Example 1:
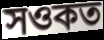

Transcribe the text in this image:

সওকত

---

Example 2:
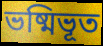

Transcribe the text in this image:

ভষ্মিভূত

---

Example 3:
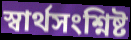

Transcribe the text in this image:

স্বার্থসংশ্নিষ্ট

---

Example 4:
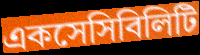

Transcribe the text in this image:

একসেসিবিলিটি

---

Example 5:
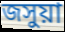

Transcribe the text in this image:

জসুয়া